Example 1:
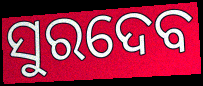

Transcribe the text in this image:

ସୁରଦେବ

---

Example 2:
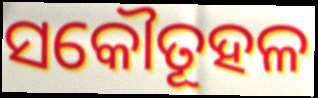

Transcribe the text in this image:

ସକୌତୂହଳ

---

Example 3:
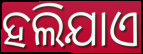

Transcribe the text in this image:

ହଲିଯାଏ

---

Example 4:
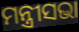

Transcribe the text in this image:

ମନ୍ତ୍ରୀସଭା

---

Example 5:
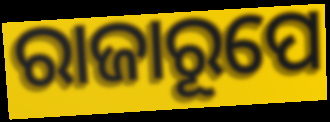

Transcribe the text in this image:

ରାଜାରୂପେ